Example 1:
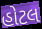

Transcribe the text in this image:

હોટલ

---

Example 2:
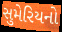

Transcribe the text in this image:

સુમેરિયનો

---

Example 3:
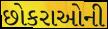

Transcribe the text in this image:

છોકરાઓની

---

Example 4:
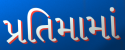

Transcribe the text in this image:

પ્રતિમામાં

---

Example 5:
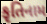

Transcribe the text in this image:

કૃતિનામ